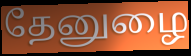
தேனுழை